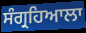
ਸੰਗ੍ਰਹਿਆਲਾ